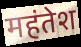
महंतेश